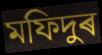
মফিদুৰ